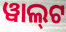
ୱାଲ୍‌ଟ